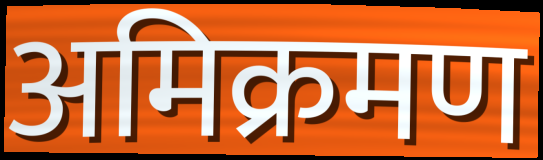
अमिक्रमण